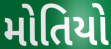
મોતિયો